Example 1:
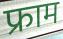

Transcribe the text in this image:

फ्राम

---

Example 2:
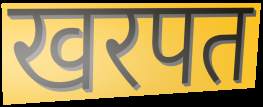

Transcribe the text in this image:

खरपत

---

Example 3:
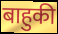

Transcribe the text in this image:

बाहुकी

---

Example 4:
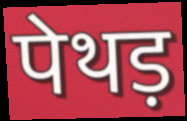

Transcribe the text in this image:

पेथड़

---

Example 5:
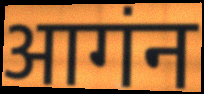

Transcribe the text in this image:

आगंन